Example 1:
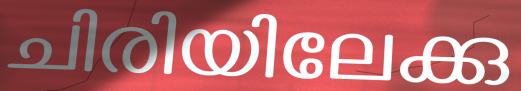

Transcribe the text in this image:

ചിരിയിലേക്കു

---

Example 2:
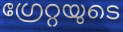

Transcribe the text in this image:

ഗ്രേറ്റയുടെ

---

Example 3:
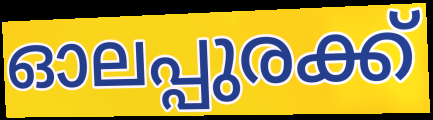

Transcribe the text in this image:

ഓലപ്പുരക്ക്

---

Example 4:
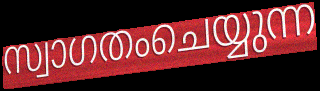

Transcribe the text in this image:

സ്വാഗതംചെയ്യുന്ന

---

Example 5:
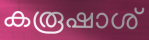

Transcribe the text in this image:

കരൂഷാശ്